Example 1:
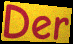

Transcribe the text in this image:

Der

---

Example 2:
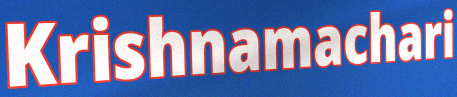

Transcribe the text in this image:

Krishnamachari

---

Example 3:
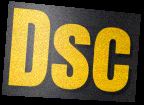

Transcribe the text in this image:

Dsc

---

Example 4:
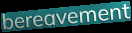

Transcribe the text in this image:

bereavement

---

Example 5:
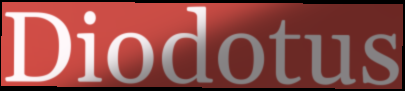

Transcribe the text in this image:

Diodotus